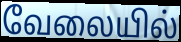
வேலையில்